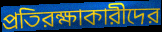
প্রতিরক্ষাকারীদের